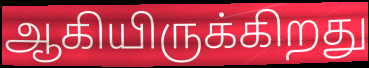
ஆகியிருக்கிறது